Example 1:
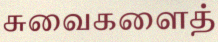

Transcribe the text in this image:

சுவைகளைத்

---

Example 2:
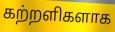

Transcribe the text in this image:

கற்றளிகளாக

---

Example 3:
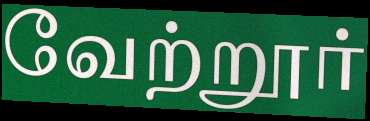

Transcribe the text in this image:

வேற்றூர்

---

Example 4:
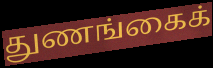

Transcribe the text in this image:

துணங்கைக்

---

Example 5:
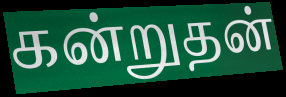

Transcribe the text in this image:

கன்றுதன்